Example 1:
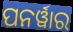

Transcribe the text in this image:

ପନର୍ୱାର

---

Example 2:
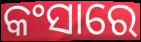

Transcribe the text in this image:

କଂସାରେ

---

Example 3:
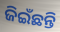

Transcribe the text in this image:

ଜିଇଁଛନ୍ତି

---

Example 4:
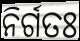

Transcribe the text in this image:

ନିର୍ଗତଃ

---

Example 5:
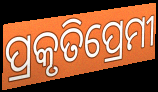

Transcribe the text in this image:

ପ୍ରକୃତିପ୍ରେମୀ